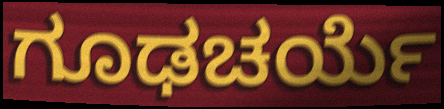
ಗೂಢಚರ್ಯೆ